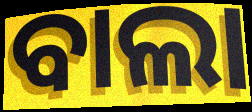
ବାଲା